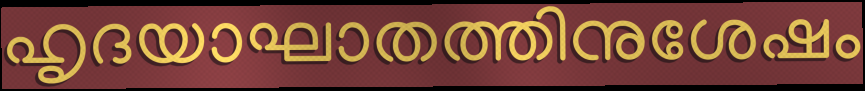
ഹൃദയാഘാതത്തിനുശേഷം